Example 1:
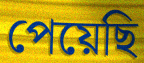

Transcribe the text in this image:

পেয়েছি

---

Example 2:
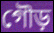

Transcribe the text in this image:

গৌড়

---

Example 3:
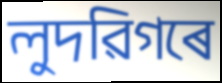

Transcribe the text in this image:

লুদৱিগৰে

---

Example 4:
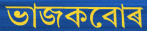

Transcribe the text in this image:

ভাজকবোৰ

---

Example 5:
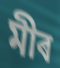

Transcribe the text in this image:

মীৰ